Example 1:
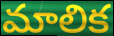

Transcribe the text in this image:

మాలిక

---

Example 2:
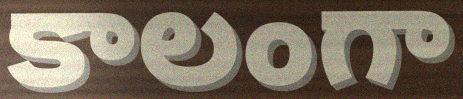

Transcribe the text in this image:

కాలంగా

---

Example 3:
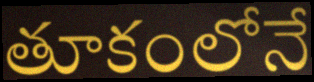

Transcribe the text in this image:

తూకంలోనే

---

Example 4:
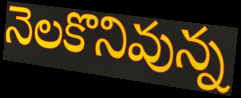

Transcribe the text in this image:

నెలకొనివున్న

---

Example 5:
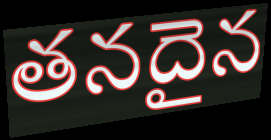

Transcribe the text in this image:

తనదైన